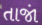
તાજાં